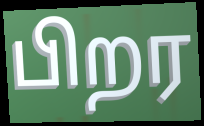
பிறர